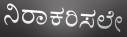
ನಿರಾಕರಿಸಲೇ